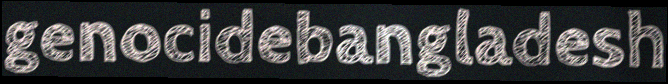
genocidebangladesh